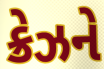
ક્રેઝને